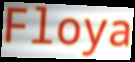
Floya